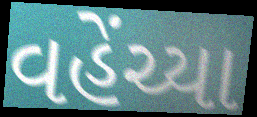
વહેંચ્યા